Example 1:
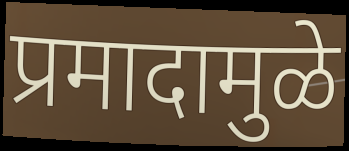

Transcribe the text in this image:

प्रमादामुळे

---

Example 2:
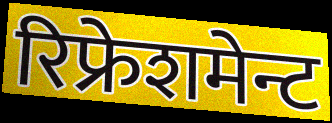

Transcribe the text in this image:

रिफ्रेशमेन्ट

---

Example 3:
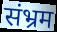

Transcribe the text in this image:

संभ्रम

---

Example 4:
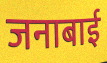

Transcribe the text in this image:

जनाबाई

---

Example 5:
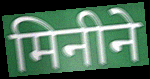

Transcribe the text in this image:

मिनीने